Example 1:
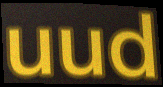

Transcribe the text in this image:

uud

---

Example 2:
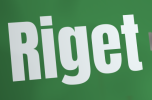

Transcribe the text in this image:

Riget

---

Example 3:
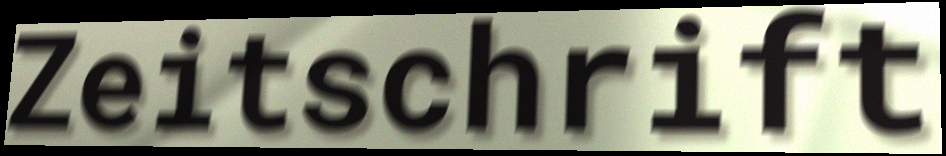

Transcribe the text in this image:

Zeitschrift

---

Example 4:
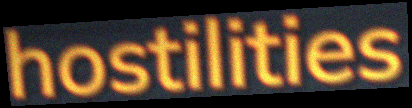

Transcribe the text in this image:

hostilities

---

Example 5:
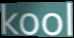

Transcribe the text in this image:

kool